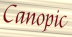
Canopic